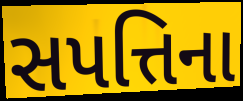
સપત્તિના